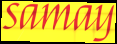
samay